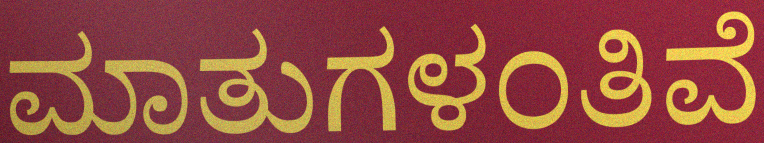
ಮಾತುಗಳಂತಿವೆ